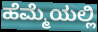
ಹೆಮ್ಮೆಯಲ್ಲಿ